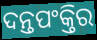
ଦନ୍ତପଂକ୍ତିର